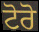
ਟੋਰੋ